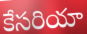
కేసరియా